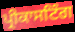
ਪ੍ਰੀਕਾਸਟਿੰਗ